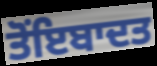
ਤੋਂਇਬਾਦਤ